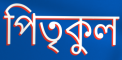
পিতৃকুল